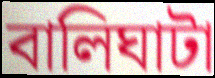
বালিঘাটা